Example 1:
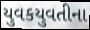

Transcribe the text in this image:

યુવકયુવતીના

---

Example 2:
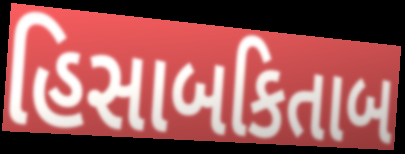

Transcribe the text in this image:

હિસાબકિતાબ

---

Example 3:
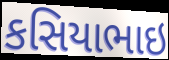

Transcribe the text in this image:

કસિયાભાઇ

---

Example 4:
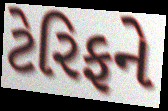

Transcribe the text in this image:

ટેરિફને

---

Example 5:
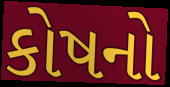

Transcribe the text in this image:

કોષનો